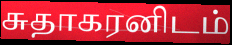
சுதாகரனிடம்